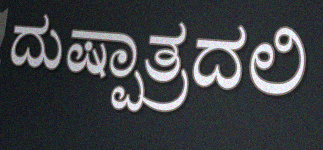
ದುಷ್ಪಾತ್ರದಲಿ